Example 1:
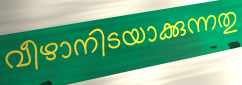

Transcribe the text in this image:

വീഴാനിടയാക്കുന്നതു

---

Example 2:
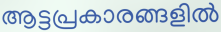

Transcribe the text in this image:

ആട്ടപ്രകാരങ്ങളിൽ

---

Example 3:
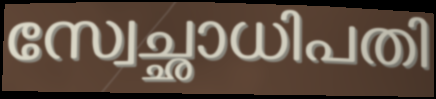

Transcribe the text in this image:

സ്വേച്ഛാധിപതി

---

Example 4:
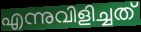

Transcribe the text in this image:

എന്നുവിളിച്ചത്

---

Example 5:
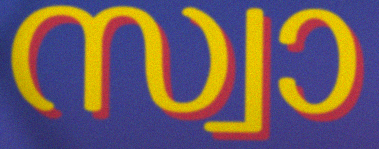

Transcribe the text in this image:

സ്വാ